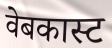
वेबकास्ट